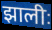
झालीः